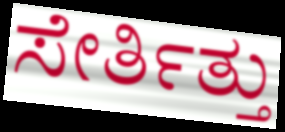
ಸೇರ್ತಿತ್ತು